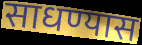
साधण्यास